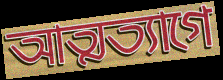
আত্মত্যাগে